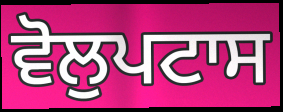
ਵੋਲੁਪਟਾਸ